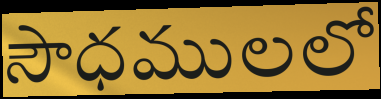
సౌధములలో